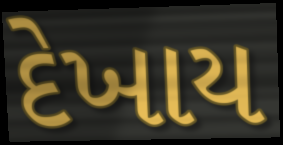
દેખાય